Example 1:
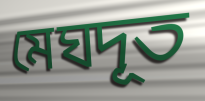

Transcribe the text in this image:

মেঘদূত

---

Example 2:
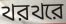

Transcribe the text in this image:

থরথরে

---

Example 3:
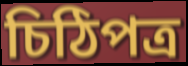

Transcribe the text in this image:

চিঠিপত্র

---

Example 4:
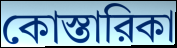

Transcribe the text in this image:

কোস্তারিকা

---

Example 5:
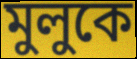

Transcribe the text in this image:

মুলুকে